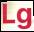
Lg